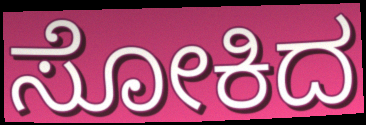
ಸೋಕಿದ